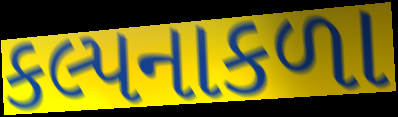
કલ્પનાકળા